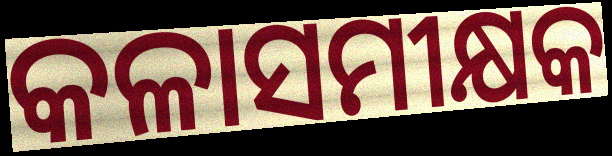
କଳାସମୀକ୍ଷକ